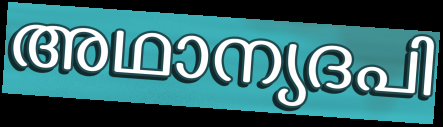
അഥാന്യദപി